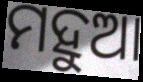
ମହୁଆ